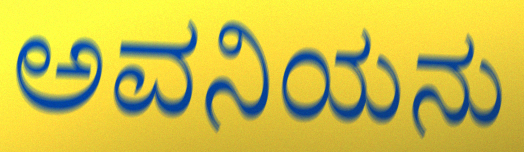
ಅವನಿಯನು